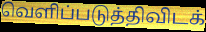
வெளிப்படுத்திவிடக்